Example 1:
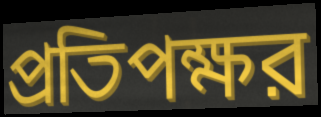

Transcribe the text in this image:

প্রতিপক্ষর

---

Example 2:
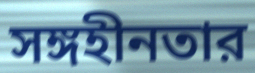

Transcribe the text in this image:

সঙ্গহীনতার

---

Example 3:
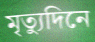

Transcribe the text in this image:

মৃত্যুদিনে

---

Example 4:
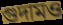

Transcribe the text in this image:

গুদামও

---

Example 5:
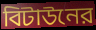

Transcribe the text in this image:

বিটাউনের